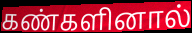
கண்களினால்